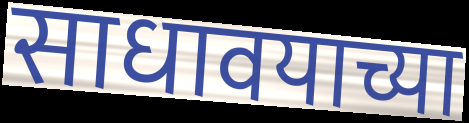
साधावयाच्या